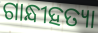
ଗାନ୍ଧୀହତ୍ୟା